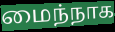
மைந்நாக